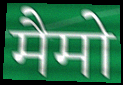
मैमो